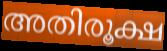
അതിരൂക്ഷ